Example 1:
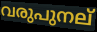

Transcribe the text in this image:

വരുപുനല്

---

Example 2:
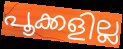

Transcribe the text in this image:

പൂക്കളില്ല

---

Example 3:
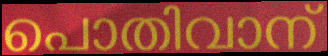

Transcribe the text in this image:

പൊതിവാന്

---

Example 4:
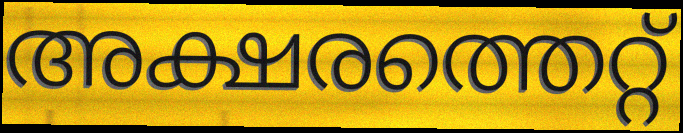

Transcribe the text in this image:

അക്ഷരത്തെറ്റ്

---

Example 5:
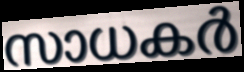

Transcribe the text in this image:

സാധകർ